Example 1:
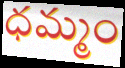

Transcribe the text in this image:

ధమ్మం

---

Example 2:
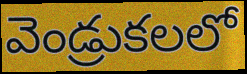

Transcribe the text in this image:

వెండ్రుకలలో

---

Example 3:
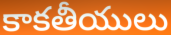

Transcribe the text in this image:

కాకతీయులు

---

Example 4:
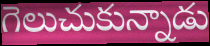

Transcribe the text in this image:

గెలుచుకున్నాడు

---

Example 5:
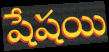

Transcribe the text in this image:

షేషయి